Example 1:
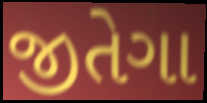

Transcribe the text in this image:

જીતેગા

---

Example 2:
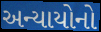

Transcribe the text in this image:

અન્યાયોનો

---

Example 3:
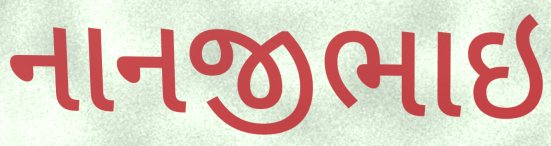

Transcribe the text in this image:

નાનજીભાઇ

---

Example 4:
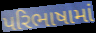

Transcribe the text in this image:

પરિભાષામાં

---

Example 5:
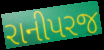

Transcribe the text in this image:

રાનીપરજ